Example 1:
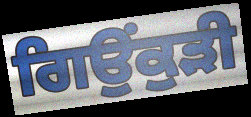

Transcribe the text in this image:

ਗਿਉਂਕੁੜੀ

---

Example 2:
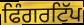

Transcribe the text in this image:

ਫਿੰਗਰਟਿੱਪ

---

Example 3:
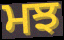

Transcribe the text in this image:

ਮਝ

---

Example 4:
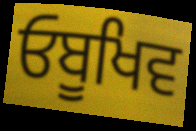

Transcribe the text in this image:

ਓਬੂਖਿਵ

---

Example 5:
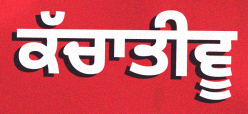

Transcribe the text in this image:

ਕੱਚਾਤੀਵੂ